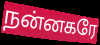
நன்னகரே